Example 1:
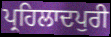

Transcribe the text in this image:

ਪ੍ਰਹਿਲਾਦਪੁਰੀ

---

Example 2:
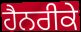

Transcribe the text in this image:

ਹੈਨਰੀਕੇ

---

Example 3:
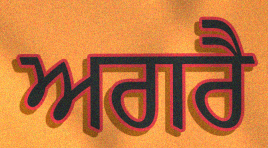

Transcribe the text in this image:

ਅਗਰੈ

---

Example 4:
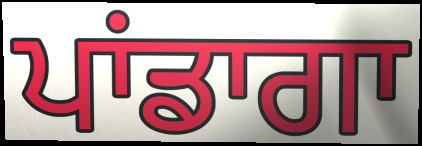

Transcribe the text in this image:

ਪਾਂਡਾਗਾ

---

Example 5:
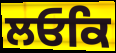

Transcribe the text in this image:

ਲਓਕਿ